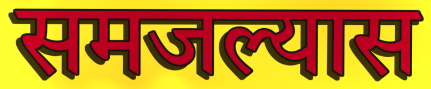
समजल्यास